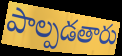
పాల్పడతారు